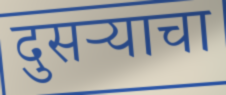
दुसऱ्याचा